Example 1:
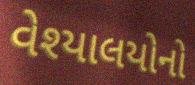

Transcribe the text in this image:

વેશ્યાલયોનો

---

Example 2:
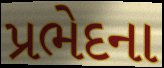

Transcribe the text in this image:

પ્રભેદના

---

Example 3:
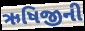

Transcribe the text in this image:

ઋષિજીની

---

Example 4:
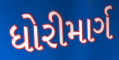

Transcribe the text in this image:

ધોરીમાર્ગ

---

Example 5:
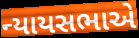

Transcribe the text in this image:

ન્યાયસભાએ